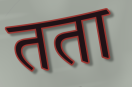
तता